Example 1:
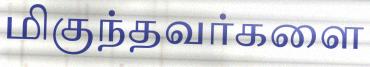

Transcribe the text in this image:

மிகுந்தவர்களை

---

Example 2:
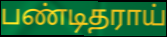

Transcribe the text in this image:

பண்டிதராய்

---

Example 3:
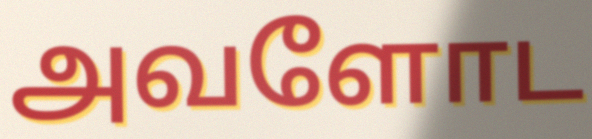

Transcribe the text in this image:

அவளோட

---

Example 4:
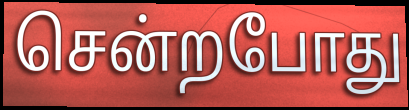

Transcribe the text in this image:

சென்றபோது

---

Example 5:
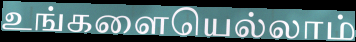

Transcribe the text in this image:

உங்களையெல்லாம்